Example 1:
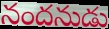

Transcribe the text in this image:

నందనుడు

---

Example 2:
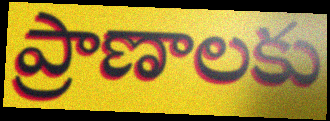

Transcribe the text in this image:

ప్రాణాలకు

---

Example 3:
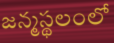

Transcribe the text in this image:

జన్మస్థలంలో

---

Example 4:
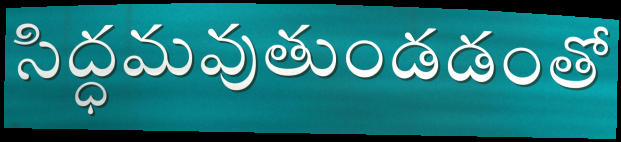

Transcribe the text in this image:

సిద్ధమవుతుండడంతో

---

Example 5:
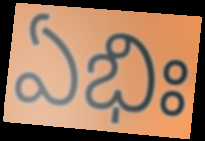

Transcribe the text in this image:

ఏభిః